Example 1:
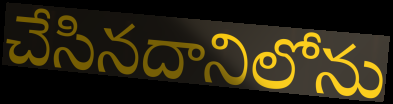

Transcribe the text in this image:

చేసినదానిలోను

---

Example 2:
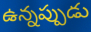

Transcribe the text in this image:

ఉన్నప్పుడు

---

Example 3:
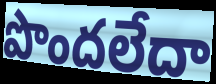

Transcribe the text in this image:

పొందలేదా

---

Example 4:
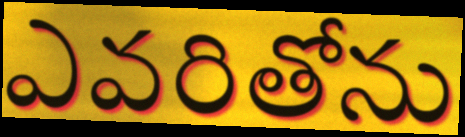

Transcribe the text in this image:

ఎవరితోను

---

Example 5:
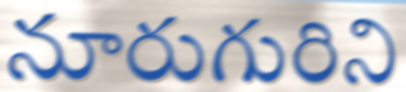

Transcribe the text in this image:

నూరుగురిని